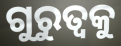
ଗୁରୁତ୍ୱକୁ